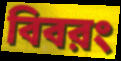
বিবরং